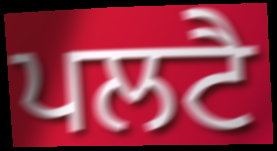
ਪਲਟੈ